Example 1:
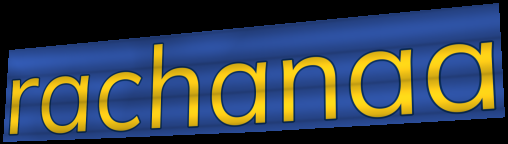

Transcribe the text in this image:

rachanaa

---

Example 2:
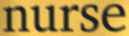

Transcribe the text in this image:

nurse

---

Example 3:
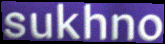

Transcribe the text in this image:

sukhno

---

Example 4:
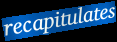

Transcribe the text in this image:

recapitulates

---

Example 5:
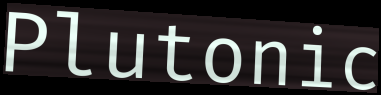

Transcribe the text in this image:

Plutonic